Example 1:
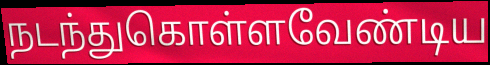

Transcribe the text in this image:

நடந்துகொள்ளவேண்டிய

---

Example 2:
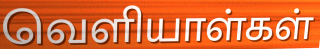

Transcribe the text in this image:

வெளியாள்கள்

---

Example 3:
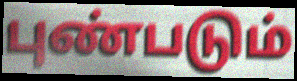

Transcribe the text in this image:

புண்படும்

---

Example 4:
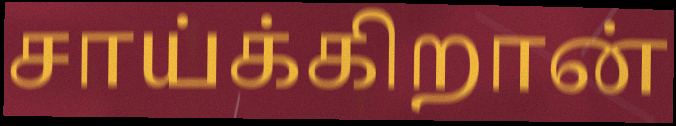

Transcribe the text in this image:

சாய்க்கிறான்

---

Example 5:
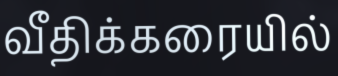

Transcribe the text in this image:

வீதிக்கரையில்